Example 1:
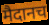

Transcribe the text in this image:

मैदानच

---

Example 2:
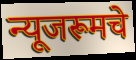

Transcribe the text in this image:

न्यूजरूमचे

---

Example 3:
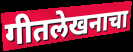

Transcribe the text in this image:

गीतलेखनाचा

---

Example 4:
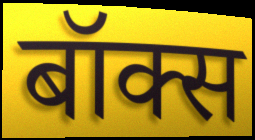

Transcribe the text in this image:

बॉक्स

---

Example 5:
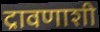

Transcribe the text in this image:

द्रावणाशी